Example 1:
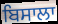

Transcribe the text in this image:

ਬਿਸਾਲਾ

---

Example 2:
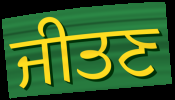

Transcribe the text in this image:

ਜੀਤਣ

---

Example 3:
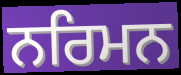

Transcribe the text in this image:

ਨਰਿਮਨ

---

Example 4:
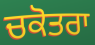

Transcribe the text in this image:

ਚਕੋਤਰਾ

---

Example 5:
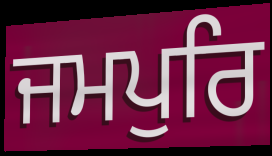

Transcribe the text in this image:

ਜਮਪੁਰਿ